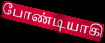
போண்டியாகி